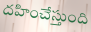
దహించేస్తుంది